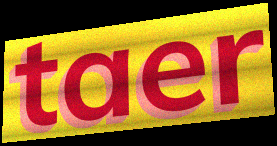
taer